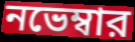
নভেম্বার